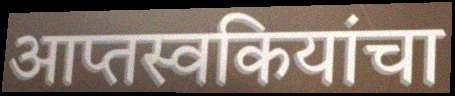
आप्तस्वकियांचा